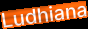
Ludhiana